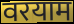
वरयाम